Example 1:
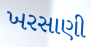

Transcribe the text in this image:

ખરસાણી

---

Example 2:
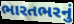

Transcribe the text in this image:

ભારતભરનું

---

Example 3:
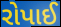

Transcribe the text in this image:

રોપાઈ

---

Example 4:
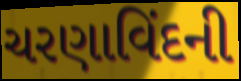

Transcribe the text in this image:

ચરણાવિંદની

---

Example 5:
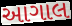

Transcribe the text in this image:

આગાલ